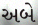
અબે